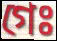
গেঃ